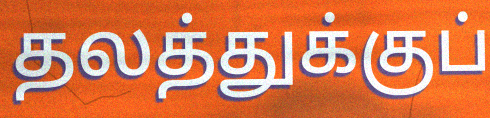
தலத்துக்குப்